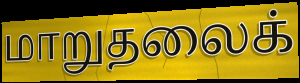
மாறுதலைக்